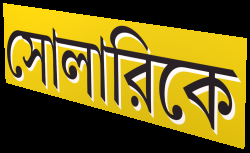
সোলারিকে